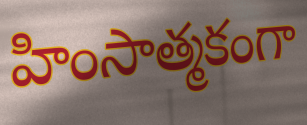
హింసాత్మకంగా